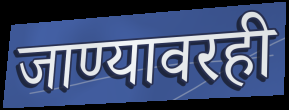
जाण्यावरही